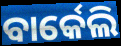
ବାର୍କେଲି